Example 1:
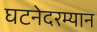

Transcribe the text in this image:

घटनेदरम्यान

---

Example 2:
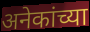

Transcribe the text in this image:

अनेकांच्या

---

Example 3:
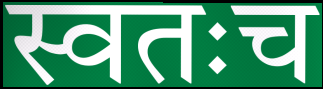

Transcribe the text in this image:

स्वतःच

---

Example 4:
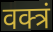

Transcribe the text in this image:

वक्त्रं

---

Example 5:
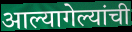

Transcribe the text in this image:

आल्यागेल्यांची